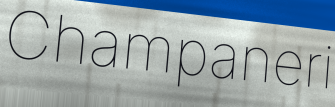
Champaneri